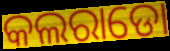
କଲରାଡୋ